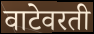
वाटेवरती